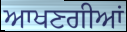
ਆਖਣਗੀਆਂ